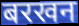
बरखन